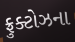
ફ્રુક્ટોઝના